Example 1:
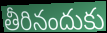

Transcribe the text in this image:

తీరినందుకు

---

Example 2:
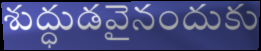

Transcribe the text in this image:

శుద్ధుడవైనందుకు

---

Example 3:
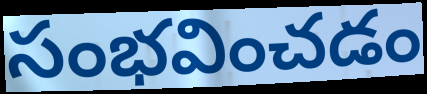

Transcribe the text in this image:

సంభవించడం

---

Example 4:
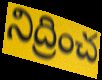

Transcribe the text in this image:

నిద్రించ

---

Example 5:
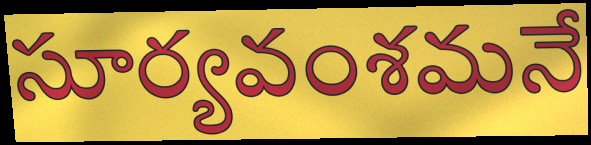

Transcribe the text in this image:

సూర్యవంశమనే